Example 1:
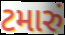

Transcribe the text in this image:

ટમારું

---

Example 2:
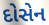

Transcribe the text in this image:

દોસેન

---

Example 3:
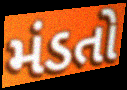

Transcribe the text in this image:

મંડતો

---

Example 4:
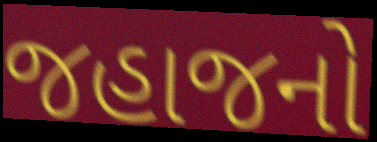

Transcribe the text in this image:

જહાજનો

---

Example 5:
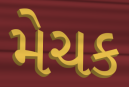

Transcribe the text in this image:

મેચક